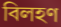
বিলহণ